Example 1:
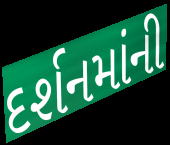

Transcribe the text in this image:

દર્શનમાંની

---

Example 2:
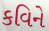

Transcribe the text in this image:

કવિને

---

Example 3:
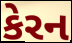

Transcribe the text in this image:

કેરન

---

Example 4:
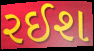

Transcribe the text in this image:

રઈશ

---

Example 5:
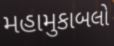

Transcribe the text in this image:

મહામુકાબલો